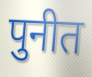
पुनीत